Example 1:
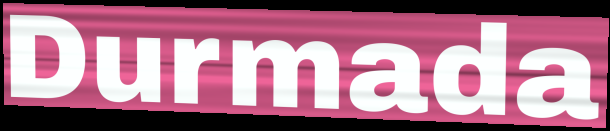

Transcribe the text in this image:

Durmada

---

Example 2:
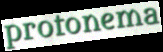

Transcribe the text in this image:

protonema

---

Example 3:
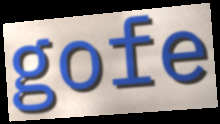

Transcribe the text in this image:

gofe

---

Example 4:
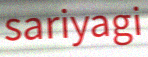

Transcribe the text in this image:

sariyagi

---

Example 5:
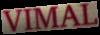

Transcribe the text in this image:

VIMAL